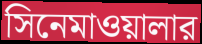
সিনেমাওয়ালার